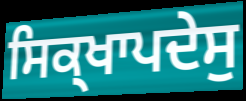
ਸਿਕ੍ਖਾਪਦੇਸੁ